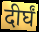
दीर्घं